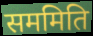
सममिति